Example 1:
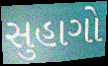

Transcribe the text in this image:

સુહાગો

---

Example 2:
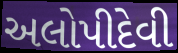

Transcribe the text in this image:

અલોપીદેવી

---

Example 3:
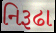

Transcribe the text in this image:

નિરૂઢા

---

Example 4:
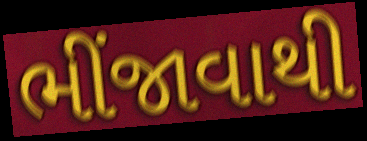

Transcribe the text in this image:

ભીંજાવાથી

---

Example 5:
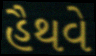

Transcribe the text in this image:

હૈથવે